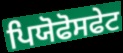
ਪਿਯੋਫੋਸਫੇਟ